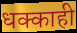
धक्काही